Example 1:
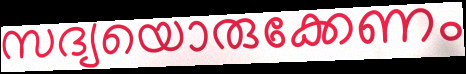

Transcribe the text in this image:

സദ്യയൊരുക്കേണം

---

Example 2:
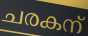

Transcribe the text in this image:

ചരകന്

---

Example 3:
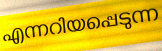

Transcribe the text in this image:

എന്നറിയപ്പെടുന്ന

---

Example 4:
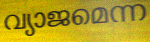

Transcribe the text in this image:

വ്യാജമെന്ന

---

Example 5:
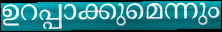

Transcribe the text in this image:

ഉറപ്പാക്കുമെന്നും